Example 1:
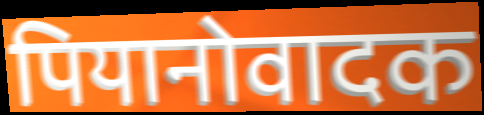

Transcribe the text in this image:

पियानोवादक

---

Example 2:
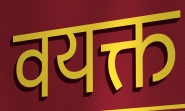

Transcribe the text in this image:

वयक्त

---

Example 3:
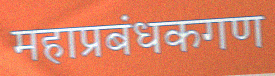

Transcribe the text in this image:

महाप्रबंधकगण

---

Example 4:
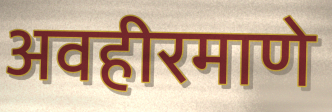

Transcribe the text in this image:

अवहीरमाणे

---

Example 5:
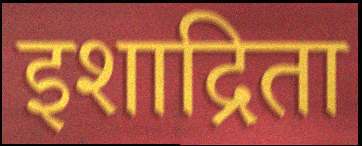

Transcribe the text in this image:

इशाद्रिता